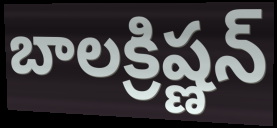
బాలక్రిష్ణన్